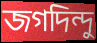
জগদিন্দু